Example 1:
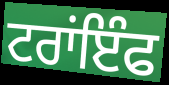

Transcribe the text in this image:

ਟਰਾਂਇੰਫ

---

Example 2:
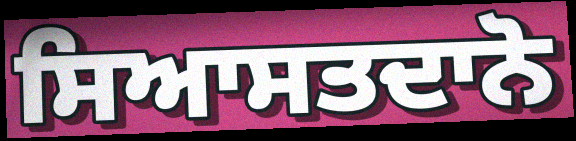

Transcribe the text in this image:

ਸਿਆਸਤਦਾਨੋ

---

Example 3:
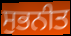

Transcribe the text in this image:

ਸੁਭਨੀਤ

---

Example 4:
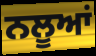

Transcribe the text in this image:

ਨਲੂਆਂ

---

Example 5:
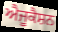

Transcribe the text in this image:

ਐਜੂਕੈਸ਼ਨ